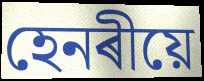
হেনৰীয়ে